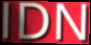
IDN